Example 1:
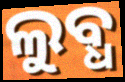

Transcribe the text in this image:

ଲୁବ୍ଧ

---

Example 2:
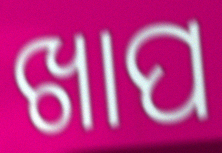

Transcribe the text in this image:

ଖାପ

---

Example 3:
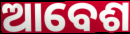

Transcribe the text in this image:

ଆବେଶ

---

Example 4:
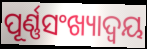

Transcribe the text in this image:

ପୂର୍ଣ୍ଣସଂଖ୍ୟାଦ୍ଵୟ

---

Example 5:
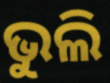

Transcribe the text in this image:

ଭୁଲି